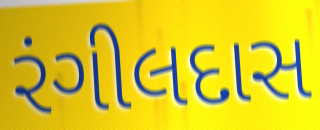
રંગીલદાસ